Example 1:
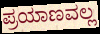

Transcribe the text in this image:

ಪ್ರಯಾಣವಲ್ಲ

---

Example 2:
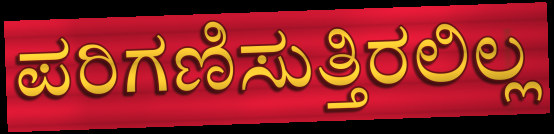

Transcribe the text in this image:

ಪರಿಗಣಿಸುತ್ತಿರಲಿಲ್ಲ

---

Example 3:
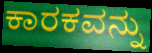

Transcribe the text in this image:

ಕಾರಕವನ್ನು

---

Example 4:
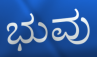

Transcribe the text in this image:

ಭುವು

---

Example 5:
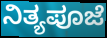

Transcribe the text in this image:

ನಿತ್ಯಪೂಜೆ